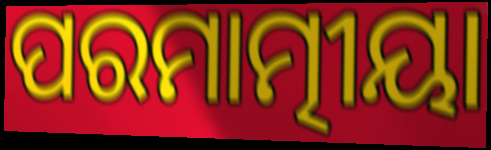
ପରମାତ୍ମୀୟା